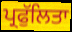
ਪ੍ਰਫੁੱਲਿਤਾ